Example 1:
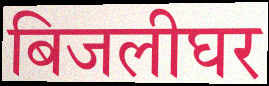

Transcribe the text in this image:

बिजलीघर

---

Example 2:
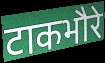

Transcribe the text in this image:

टाकभौरे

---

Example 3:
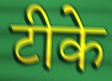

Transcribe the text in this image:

टीके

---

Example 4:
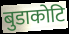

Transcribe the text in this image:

बुडाकोटि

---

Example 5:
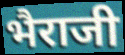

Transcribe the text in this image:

भैराजी